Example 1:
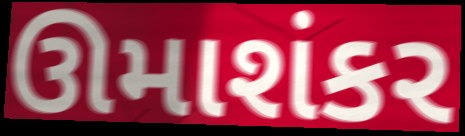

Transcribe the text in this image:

ઊમાશંકર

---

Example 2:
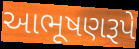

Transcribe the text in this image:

આભૂષણરૂપે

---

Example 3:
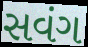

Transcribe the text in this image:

સવંગ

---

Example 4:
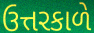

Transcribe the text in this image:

ઉત્તરકાળે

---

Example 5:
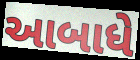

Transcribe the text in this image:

આબાધે